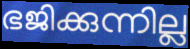
ഭജിക്കുന്നില്ല